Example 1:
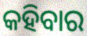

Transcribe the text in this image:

କହିବାର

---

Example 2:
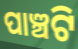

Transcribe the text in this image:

ପାଞ୍ଚଟି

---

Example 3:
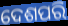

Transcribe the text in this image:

ଦେଶପରି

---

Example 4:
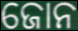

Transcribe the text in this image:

ଜୋନ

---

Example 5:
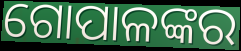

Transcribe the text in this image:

ଗୋପାଳଙ୍କର